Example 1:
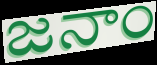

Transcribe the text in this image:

జనాం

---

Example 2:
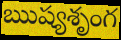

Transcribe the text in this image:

ఋష్యశృంగ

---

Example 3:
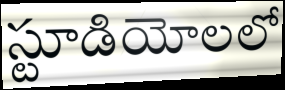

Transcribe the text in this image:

స్టూడియోలలో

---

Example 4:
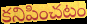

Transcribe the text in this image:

కనిపించటం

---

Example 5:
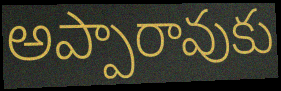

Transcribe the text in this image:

అప్పారావుకు